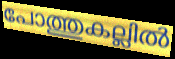
പോത്തുകല്ലിൽ